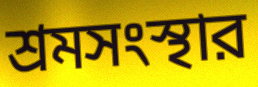
শ্রমসংস্থার